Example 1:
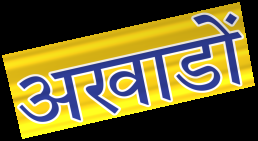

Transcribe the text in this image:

अखाडों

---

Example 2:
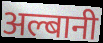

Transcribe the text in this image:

अल्बानी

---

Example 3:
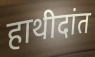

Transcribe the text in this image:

हाथीदांत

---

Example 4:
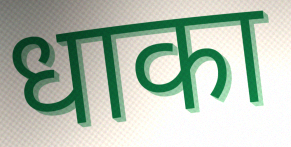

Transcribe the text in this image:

धाका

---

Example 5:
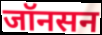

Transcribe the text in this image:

जॉनसन